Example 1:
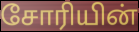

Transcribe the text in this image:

சோரியின்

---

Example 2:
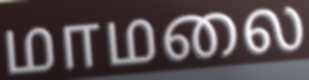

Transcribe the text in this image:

மாமலை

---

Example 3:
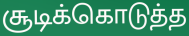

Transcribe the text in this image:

சூடிக்கொடுத்த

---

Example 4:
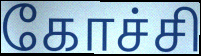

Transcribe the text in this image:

கோச்சி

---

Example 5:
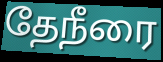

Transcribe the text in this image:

தேநீரை